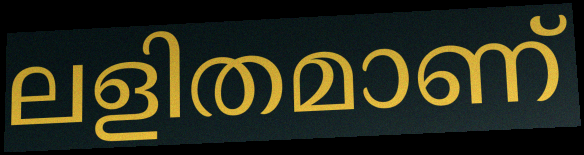
ലളിതമാണ്